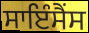
ਸਾਇੰਸੈਂਸ